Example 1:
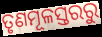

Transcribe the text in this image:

ତୃଣମୂଳସ୍ତରରୁ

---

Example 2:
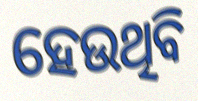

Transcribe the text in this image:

ହେଉଥିବି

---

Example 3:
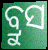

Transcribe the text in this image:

ବ୍ରୁସ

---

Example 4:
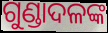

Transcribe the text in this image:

ଗୁଣ୍ଡାଦଳଙ୍କ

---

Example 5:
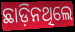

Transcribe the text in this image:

ଛାଡ଼ିନଥିଲେ